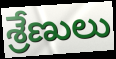
శ్రేణులు